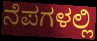
ನೆಪಗಳಲ್ಲಿ